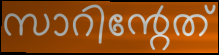
സാറിന്റേത്